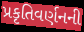
પ્રકૃતિવર્ણનની